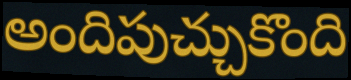
అందిపుచ్చుకొంది